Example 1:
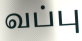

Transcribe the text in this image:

வப்பு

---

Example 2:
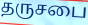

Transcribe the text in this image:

தருசபை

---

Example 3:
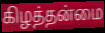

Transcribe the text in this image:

கிழத்தன்மை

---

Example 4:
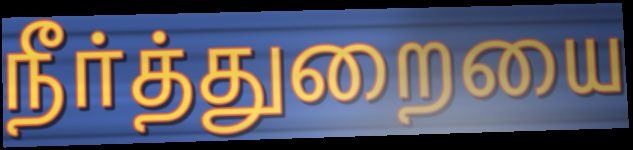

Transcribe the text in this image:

நீர்த்துறையை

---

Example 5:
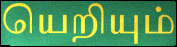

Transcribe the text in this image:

யெறியும்